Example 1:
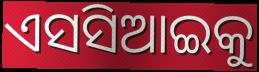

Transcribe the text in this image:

ଏସସିଆଇକୁ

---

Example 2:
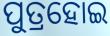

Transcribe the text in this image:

ପୁତ୍ରହୋଇ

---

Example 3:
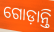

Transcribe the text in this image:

ଗୋଡ଼ାନ୍ତି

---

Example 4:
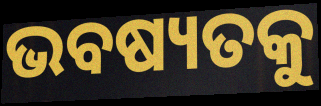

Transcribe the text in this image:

ଭବଷ୍ୟତକୁ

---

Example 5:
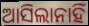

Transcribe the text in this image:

ଆସିଲାନାହିଁ